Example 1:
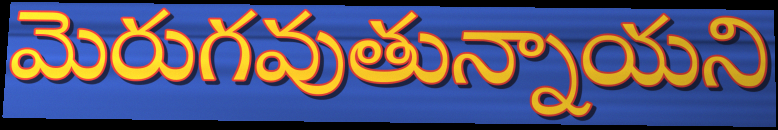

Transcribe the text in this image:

మెరుగవుతున్నాయని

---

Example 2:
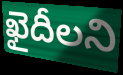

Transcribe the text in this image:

ఖైదీలని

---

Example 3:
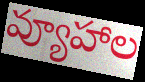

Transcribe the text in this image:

వ్యూహాల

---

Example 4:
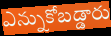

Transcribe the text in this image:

ఎన్నుకోబడ్డారు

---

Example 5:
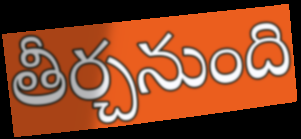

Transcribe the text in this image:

తీర్చనుంది